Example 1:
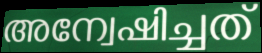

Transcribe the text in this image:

അന്വേഷിച്ചത്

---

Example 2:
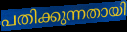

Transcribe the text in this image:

പതിക്കുന്നതായി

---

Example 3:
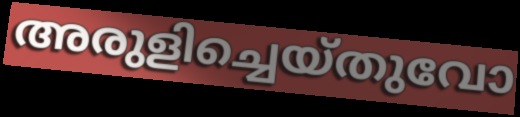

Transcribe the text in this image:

അരുളിച്ചെയ്തുവോ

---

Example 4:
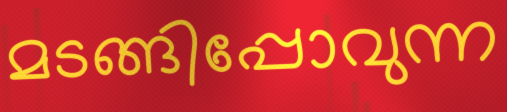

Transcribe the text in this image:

മടങ്ങിപ്പോവുന്ന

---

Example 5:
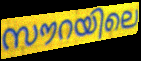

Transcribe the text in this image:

സൗറയിലെ